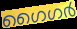
ഗൈഗർ